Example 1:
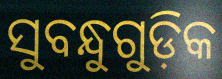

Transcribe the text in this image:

ସୁବନ୍ଧୁଗୁଡ଼ିକ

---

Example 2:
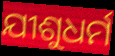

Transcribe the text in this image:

ଯୀଶୁଧର୍ମ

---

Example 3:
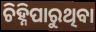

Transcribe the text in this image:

ଚିହ୍ନିପାରୁଥିବା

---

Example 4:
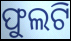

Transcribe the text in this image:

ଫୁଲଟି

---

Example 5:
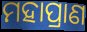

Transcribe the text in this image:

ମହାପ୍ରାଣ